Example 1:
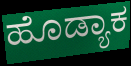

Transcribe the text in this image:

ಹೊಡ್ಯಾಕ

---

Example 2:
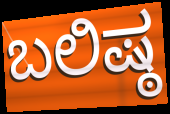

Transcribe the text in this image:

ಬಲಿಷ್ಠ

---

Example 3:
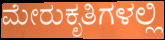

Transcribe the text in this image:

ಮೇರುಕೃತಿಗಳಲ್ಲಿ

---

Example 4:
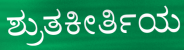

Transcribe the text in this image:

ಶ್ರುತಕೀರ್ತಿಯ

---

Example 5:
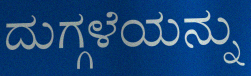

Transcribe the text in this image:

ದುಗ್ಗಳೆಯನ್ನು